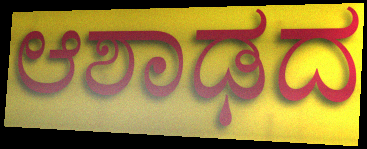
ಆಶಾಢದ